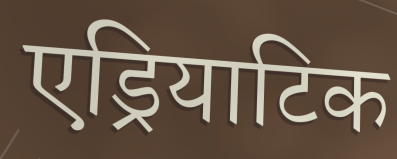
एड्रियाटिक